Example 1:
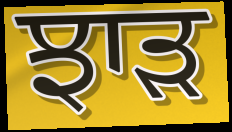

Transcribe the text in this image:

ਝਾੜ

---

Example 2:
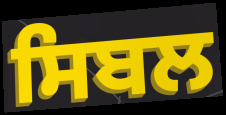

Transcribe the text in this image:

ਸਿਬਲ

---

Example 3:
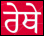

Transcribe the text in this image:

ਰੇਥੇ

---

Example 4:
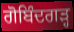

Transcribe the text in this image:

ਗੋਬਿੰਦਗੜ੍ਹ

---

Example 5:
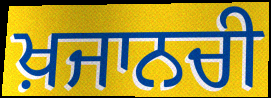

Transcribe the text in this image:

ਖ਼ਜਾਨਚੀ